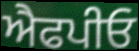
ਐਫਪੀਓ